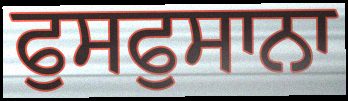
ਫੁਸਫੁਸਾਨਾ